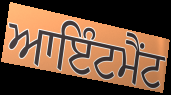
ਆਇੰਟਮੈਂਟ